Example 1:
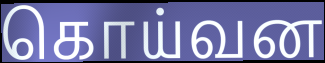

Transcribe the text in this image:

கொய்வன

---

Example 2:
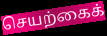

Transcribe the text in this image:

செயற்கைக்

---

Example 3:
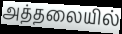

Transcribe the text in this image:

அத்தலையில்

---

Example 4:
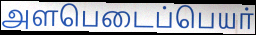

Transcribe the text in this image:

அளபெடைப்பெயர்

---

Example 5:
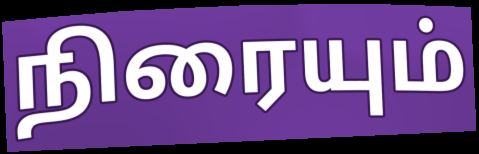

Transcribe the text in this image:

நிரையும்